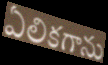
ఏలికగాను